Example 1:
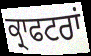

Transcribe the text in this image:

ਕ੍ਰਾਫਟਰਾਂ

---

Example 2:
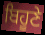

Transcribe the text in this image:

ਬਿਹੂਣੇ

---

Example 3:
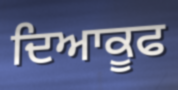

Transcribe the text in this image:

ਦਿਆਕੂਫ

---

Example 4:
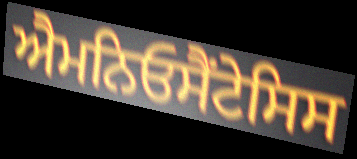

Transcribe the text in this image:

ਐਮਨਿਓਸੈਂਟੇਸਿਸ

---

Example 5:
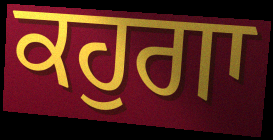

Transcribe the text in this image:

ਕਹੁਗਾ